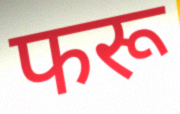
फरू